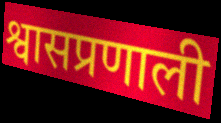
श्वासप्रणाली